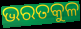
ଭରତକୁଳ